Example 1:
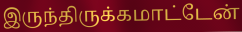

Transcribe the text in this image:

இருந்திருக்கமாட்டேன்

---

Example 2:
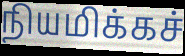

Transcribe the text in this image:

நியமிக்கச்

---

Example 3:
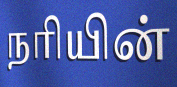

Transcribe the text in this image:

நரியின்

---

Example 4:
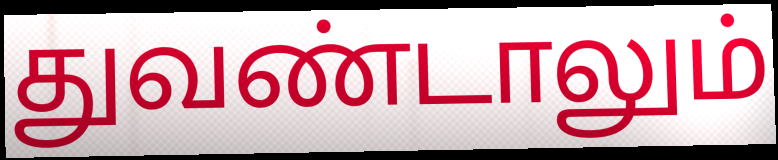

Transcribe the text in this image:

துவண்டாலும்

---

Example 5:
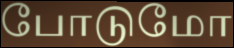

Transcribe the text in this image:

போடுமோ